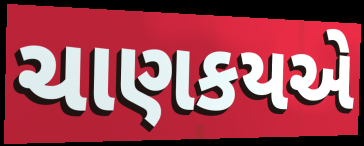
ચાણકયએ